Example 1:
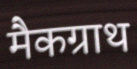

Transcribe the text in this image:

मैकग्राथ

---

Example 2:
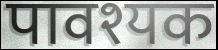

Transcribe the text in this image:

पावश्यक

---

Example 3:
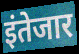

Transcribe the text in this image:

इंतेजार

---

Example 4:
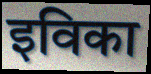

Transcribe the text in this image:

इविका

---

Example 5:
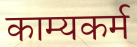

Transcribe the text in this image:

काम्यकर्म